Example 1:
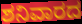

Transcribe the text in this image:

ಶನಿವಾರದ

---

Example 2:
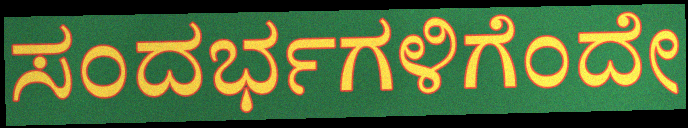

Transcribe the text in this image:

ಸಂದರ್ಭಗಳಿಗೆಂದೇ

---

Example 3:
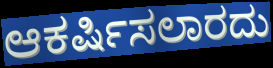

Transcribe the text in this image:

ಆಕರ್ಷಿಸಲಾರದು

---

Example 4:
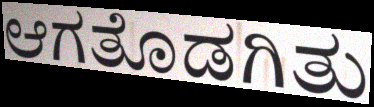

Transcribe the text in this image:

ಆಗತೊಡಗಿತು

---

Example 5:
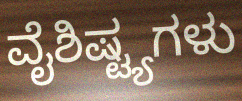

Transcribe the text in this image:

ವೈಶಿಷ್ಟ್ಯಗಳು